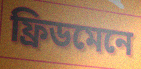
ফ্ৰিডমেনে